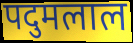
पदुमलाल